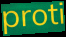
proti